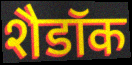
शैडॉक